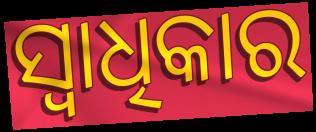
ସ୍ବାଧିକାର